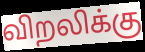
விறலிக்கு